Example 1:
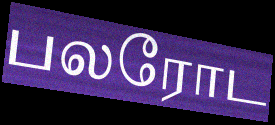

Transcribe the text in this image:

பலரோட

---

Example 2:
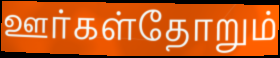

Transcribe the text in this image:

ஊர்கள்தோறும்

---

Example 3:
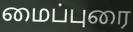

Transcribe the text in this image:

மைப்புரை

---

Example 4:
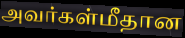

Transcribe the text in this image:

அவர்கள்மீதான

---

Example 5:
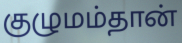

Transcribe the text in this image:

குழுமம்தான்